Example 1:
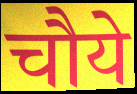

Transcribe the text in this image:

चौये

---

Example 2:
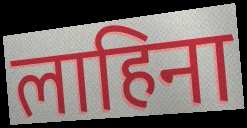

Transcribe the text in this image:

लाहिना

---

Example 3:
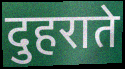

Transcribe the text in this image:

दुहराते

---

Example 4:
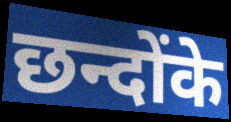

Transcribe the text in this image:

छन्दोंके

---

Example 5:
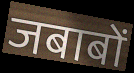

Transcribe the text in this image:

जबाबों